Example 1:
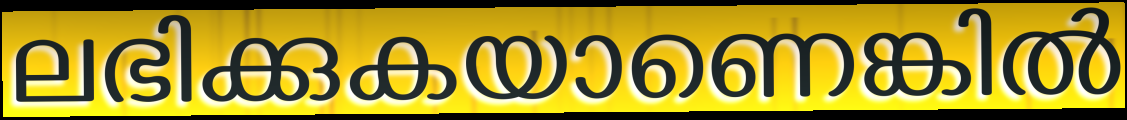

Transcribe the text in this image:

ലഭിക്കുകയാണെങ്കിൽ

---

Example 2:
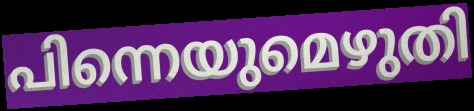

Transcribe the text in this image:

പിന്നെയുമെഴുതി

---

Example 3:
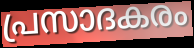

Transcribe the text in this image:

പ്രസാദകരം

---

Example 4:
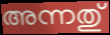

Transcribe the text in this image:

അന്നതു്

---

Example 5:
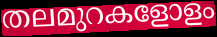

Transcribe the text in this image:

തലമുറകളോളം